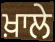
ਖ਼ਾਲੇ